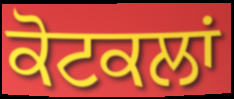
ਕੋਟਕਲਾਂ